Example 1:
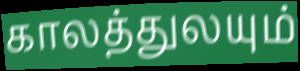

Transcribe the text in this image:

காலத்துலயும்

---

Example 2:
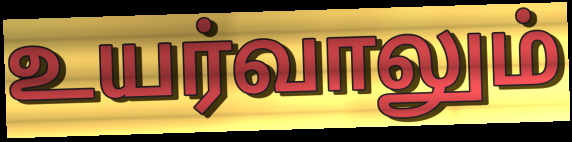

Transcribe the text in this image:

உயர்வாலும்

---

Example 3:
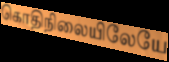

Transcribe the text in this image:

கொதிநிலையிலேயே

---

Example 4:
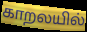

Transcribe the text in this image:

காறலயில்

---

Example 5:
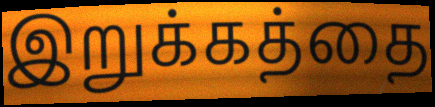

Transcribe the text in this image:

இறுக்கத்தை